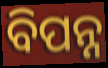
ବିପନ୍ନ